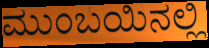
ಮುಂಬಯಿನಲ್ಲಿ